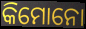
କିମୋନୋ